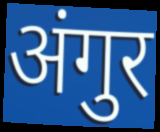
अंगुर